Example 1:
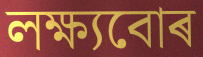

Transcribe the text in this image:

লক্ষ্যবোৰ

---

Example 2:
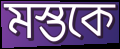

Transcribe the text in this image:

মস্তকে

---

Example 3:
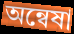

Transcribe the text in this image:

অন্বেষা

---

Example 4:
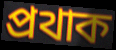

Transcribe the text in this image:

প্ৰথাক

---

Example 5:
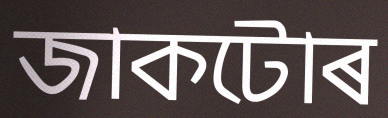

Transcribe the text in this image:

জাকটোৰ